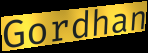
Gordhan